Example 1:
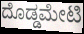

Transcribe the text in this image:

ದೊಡ್ಡಮೇಟಿ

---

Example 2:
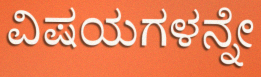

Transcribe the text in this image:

ವಿಷಯಗಳನ್ನೇ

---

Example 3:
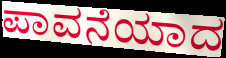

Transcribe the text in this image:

ಪಾವನೆಯಾದ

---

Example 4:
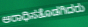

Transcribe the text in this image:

ಆರಾಧಿಸತೊಡಗಿದರು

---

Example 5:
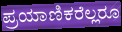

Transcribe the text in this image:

ಪ್ರಯಾಣಿಕರೆಲ್ಲರೂ